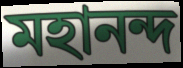
মহানন্দ